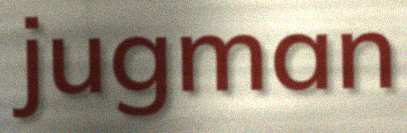
jugman